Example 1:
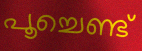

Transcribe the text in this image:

പൂച്ചെണ്ട്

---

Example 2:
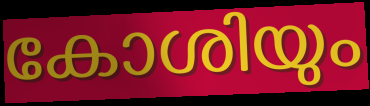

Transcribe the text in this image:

കോശിയും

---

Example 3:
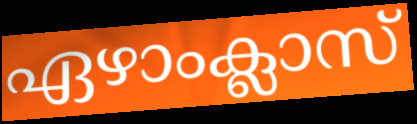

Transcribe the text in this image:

ഏഴാംക്ലാസ്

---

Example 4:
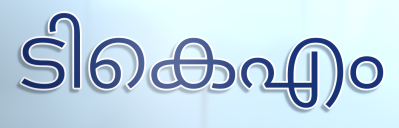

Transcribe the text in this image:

ടികെഎം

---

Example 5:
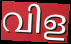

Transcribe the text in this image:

വിള